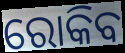
ରୋକିବ